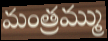
మంత్రమ్ము